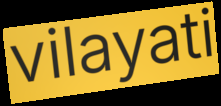
vilayati